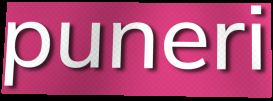
puneri